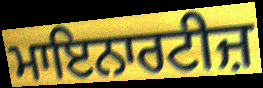
ਮਾਇਨਾਰਟੀਜ਼